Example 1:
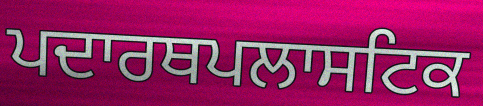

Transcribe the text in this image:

ਪਦਾਰਥਪਲਾਸਟਿਕ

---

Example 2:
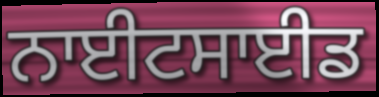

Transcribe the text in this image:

ਨਾਈਟਸਾਈਡ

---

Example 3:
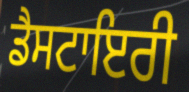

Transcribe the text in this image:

ਡੈਸਟਾਇਰੀ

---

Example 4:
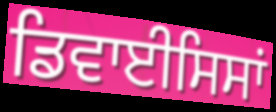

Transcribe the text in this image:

ਡਿਵਾਈਸਿਸਾਂ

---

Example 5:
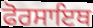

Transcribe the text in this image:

ਫੋਰਸਾਇਥ